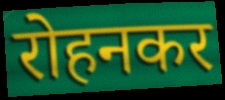
रोहनकर